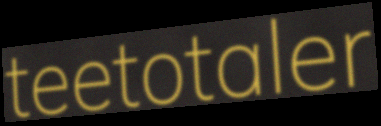
teetotaler